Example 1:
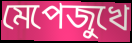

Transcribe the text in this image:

মেপেজুখে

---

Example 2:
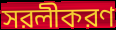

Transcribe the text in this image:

সরলীকরণ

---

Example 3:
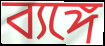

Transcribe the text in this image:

ব্যঙ্গে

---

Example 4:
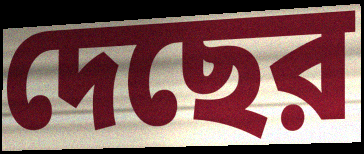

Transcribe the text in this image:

দেছের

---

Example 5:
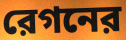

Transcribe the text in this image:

রেগনের